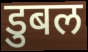
डुबल